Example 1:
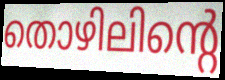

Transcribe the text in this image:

തൊഴിലിന്റെ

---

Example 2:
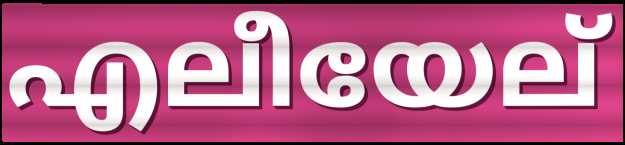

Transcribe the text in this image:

എലീയേല്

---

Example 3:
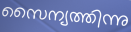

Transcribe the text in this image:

സൈന്യത്തിന്നു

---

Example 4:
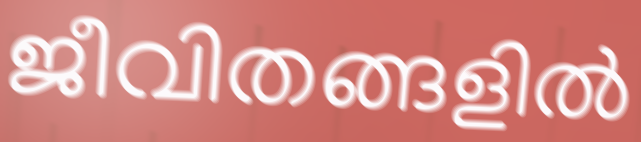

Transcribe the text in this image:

ജീവിതങ്ങളിൽ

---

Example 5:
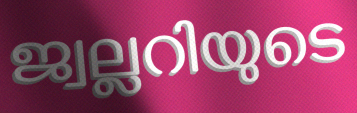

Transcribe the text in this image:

ജ്വല്ലറിയുടെ